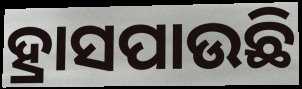
ହ୍ରାସପାଉଛି